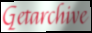
Getarchive